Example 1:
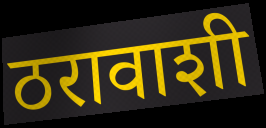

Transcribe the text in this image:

ठरावाशी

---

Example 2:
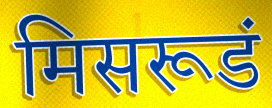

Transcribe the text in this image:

मिसरूडं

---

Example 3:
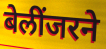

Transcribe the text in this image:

बेलींजरने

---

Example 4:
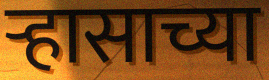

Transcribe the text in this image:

ऱ्हासाच्या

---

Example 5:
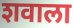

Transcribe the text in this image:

शवाला